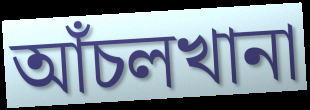
আঁচলখানা